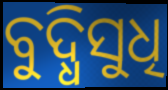
ବୁଦ୍ଧିସୁଧି